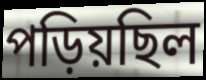
পড়িয়ছিল